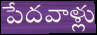
పేదవాళ్లు